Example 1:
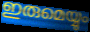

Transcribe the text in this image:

ഇരുമെയ്യും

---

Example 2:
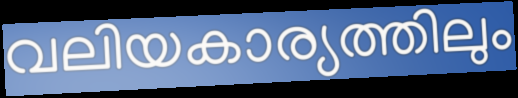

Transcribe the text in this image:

വലിയകാര്യത്തിലും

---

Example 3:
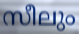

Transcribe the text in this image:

സീലും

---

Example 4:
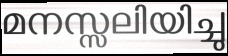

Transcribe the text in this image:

മനസ്സലിയിച്ചു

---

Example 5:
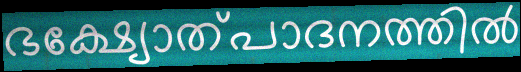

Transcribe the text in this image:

ഭക്ഷ്യോത്പാദനത്തിൽ